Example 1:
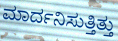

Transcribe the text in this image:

ಮಾರ್ದನಿಸುತ್ತಿತ್ತು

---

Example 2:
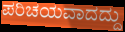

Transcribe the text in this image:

ಪರಿಚಯವಾದದ್ದು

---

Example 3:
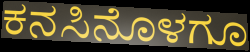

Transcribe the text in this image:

ಕನಸಿನೊಳಗೂ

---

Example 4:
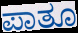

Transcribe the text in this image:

ಪಾತೂ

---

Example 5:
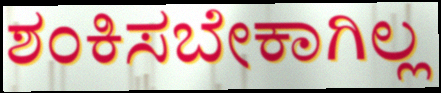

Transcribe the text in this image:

ಶಂಕಿಸಬೇಕಾಗಿಲ್ಲ